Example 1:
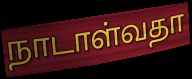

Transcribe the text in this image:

நாடாள்வதா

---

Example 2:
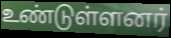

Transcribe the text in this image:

உண்டுள்ளனர்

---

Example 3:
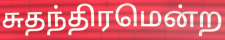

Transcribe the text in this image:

சுதந்திரமென்ற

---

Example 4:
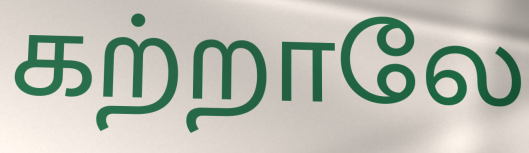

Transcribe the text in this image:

கற்றாலே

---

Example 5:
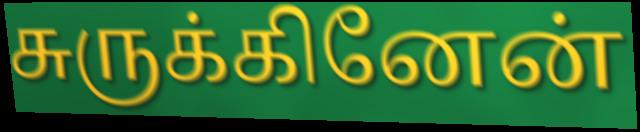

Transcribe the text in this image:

சுருக்கினேன்